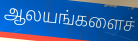
ஆலயங்களைச்